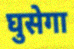
घुसेगा